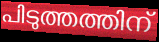
പിടുത്തത്തിന്